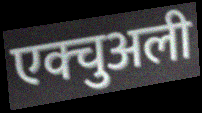
एक्चुअली